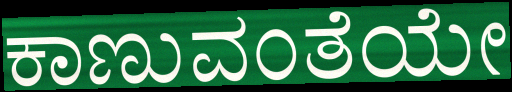
ಕಾಣುವಂತೆಯೇ